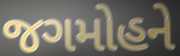
જગમોહને